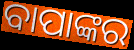
ବାପାଙ୍କର